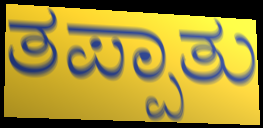
ತಪ್ಪಾತು